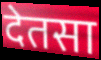
देतसा